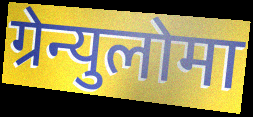
ग्रेन्युलोमा